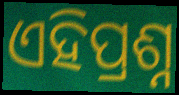
ଏହିପ୍ରଶ୍ନ